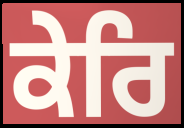
ਕੇਰਿ